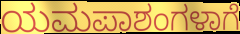
ಯಮಪಾಶಂಗಳಾಗೆ